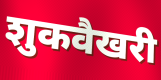
शुकवैखरी